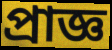
প্রাজ্ঞ